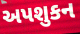
અપશુકન